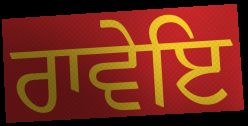
ਰਾਵੇਇ